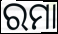
ରମା